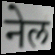
नेल